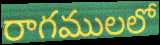
రాగములలో